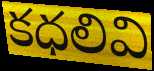
కధలివి